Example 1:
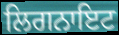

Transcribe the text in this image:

ਲਿਗਨਾਇਟ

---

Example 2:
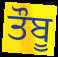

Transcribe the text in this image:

ਤੌਬੂ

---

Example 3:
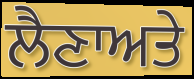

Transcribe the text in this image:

ਲੈਣਾਅਤੇ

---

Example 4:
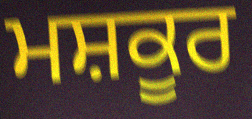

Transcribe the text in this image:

ਮਸ਼ਕੂਰ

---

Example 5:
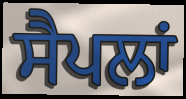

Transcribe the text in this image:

ਸੈਪਲਾਂ